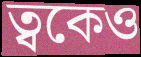
ত্বকেও